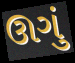
ઊગું